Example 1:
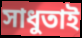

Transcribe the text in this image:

সাধুতাই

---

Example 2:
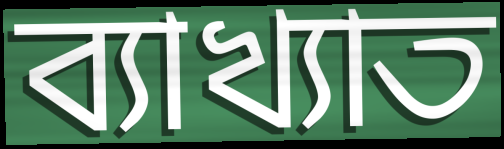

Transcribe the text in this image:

ব্যাখ্যাত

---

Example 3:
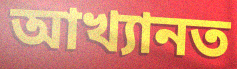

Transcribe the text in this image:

আখ্যানত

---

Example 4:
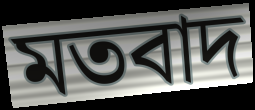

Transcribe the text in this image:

মতবাদ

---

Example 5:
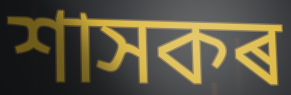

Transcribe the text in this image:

শাসকৰ